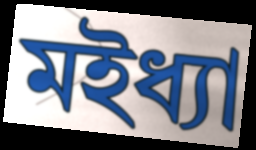
মইধ্যা